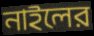
নাইলের